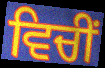
ਵਿਚੀਂ